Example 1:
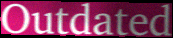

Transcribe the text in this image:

Outdated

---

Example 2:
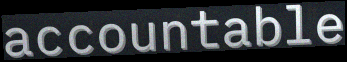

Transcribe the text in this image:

accountable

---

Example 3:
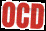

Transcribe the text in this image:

OCD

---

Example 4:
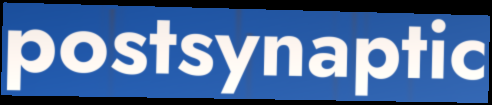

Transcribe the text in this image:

postsynaptic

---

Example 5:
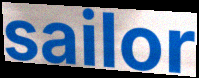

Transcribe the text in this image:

sailor